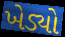
ખેડ્યો